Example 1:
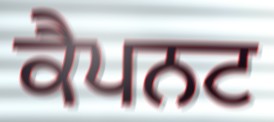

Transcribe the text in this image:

ਕੈਪਨਟ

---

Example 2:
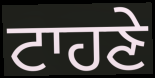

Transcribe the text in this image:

ਟਾਹਣੇ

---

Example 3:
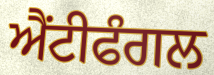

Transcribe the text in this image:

ਐਂਟੀਫੰਗਲ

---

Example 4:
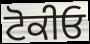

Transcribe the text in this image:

ਟੋਕੀਓ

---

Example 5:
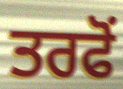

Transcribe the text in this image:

ਤਰਫੋਂ